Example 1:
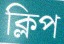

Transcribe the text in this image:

ক্লিপ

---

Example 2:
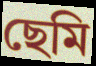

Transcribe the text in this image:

ছেমি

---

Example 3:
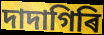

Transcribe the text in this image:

দাদাগিৰি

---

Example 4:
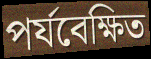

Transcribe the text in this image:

পৰ্যবেক্ষিত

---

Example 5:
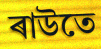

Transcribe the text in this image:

ৰাউতে